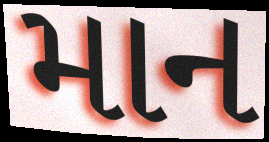
માન